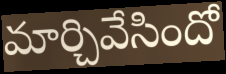
మార్చివేసిందో